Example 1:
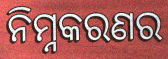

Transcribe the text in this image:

ନିମ୍ନକରଣର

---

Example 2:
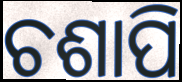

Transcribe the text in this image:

ଚଶାପି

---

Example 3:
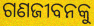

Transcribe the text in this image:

ଗଣଜୀବନକୁ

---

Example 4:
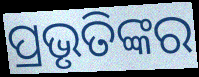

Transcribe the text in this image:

ପ୍ରଭୃତିଙ୍କର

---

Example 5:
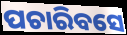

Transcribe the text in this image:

ପଚାରିବସେ